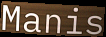
Manis